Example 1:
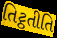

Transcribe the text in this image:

તિટ્ઠતીતિ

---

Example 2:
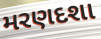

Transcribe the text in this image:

મરણદશા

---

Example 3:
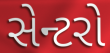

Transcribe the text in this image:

સેન્ટરો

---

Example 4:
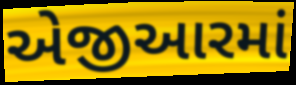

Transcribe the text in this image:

એજીઆરમાં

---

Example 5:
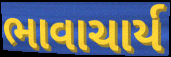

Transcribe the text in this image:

ભાવાચાર્ય